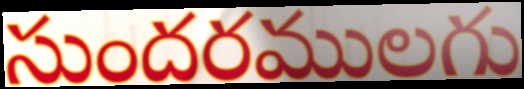
సుందరములగు